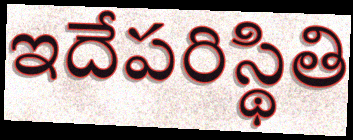
ఇదేపరిస్థితి